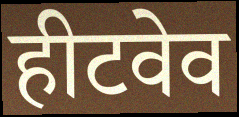
हीटवेव